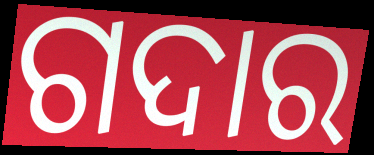
ଗଦାର